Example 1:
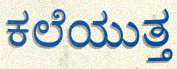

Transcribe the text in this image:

ಕಲೆಯುತ್ತ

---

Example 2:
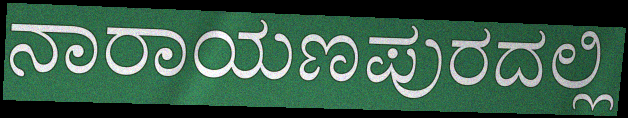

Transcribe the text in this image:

ನಾರಾಯಣಪುರದಲ್ಲಿ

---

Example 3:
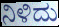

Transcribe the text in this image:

ನಿಳಿದು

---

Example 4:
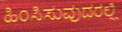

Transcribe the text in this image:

ಹಿಂಸಿಸುವುದರಲ್ಲಿ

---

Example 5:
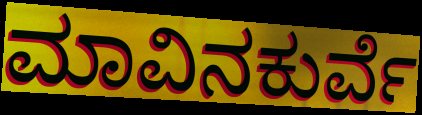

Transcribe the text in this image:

ಮಾವಿನಕುರ್ವೆ